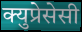
क्युप्रेसेसी